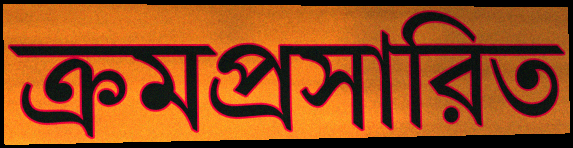
ক্রমপ্রসারিত